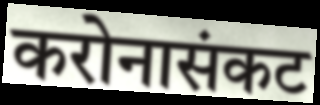
करोनासंकट